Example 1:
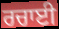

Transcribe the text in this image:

ਰਚਾਈ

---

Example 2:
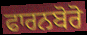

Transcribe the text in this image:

ਫਾਰਨਬੋਰੋ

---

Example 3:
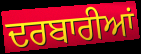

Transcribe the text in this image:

ਦਰਬਾਰੀਆਂ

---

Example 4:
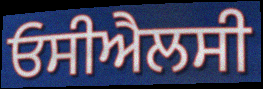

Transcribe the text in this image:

ਓਸੀਐਲਸੀ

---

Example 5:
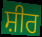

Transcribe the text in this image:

ਸ਼ੀਰ